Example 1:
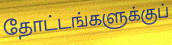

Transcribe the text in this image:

தோட்டங்களுக்குப்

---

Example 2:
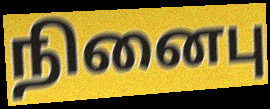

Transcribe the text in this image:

நினைபு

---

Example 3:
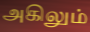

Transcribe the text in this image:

அகிலும்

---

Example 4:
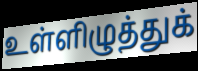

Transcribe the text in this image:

உள்ளிழுத்துக்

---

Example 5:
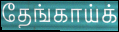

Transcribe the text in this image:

தேங்காய்க்